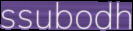
ssubodh